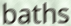
baths